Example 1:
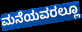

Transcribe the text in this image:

ಮನೆಯವರಲ್ಲೂ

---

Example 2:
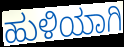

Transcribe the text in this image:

ಹುಳಿಯಾಗಿ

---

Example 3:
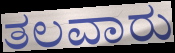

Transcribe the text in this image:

ತಲವಾರು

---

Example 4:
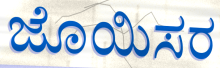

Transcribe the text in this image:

ಜೊಯಿಸರ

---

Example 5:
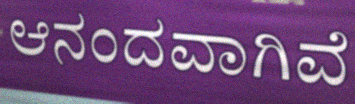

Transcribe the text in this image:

ಆನಂದವಾಗಿವೆ